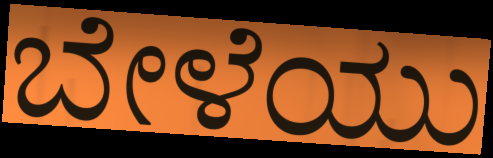
ಬೇಳೆಯು